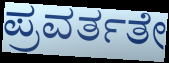
ಪ್ರವರ್ತತೇ